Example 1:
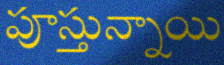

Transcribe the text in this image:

పూస్తున్నాయి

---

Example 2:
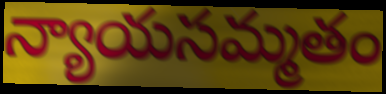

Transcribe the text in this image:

న్యాయసమ్మతం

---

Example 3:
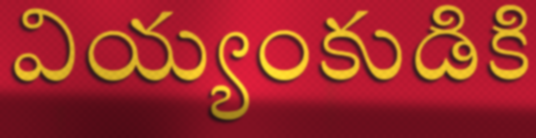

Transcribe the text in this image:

వియ్యంకుడికి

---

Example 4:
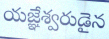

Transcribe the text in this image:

యజ్ఞేశ్వరుడైన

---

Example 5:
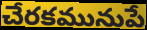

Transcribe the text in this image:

చేరకమునుపే